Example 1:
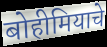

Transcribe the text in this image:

बोहीमियाचे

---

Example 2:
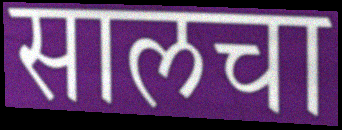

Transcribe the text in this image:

सालचा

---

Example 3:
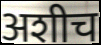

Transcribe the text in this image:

अशीच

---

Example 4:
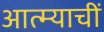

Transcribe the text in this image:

आत्म्याचीं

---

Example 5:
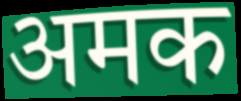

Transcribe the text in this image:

अमक